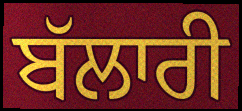
ਬੱਲਾਰੀ